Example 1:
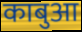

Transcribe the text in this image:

काबुआ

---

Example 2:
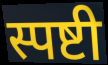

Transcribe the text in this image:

स्पष्टी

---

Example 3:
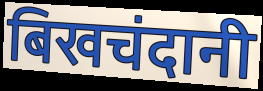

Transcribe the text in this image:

बिखचंदानी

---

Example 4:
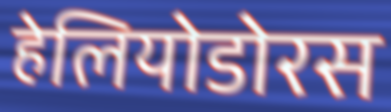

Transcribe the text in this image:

हेलियोडोरस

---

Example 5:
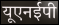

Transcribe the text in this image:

यूएनईपी